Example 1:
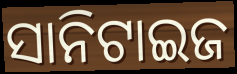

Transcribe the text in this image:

ସାନିଟାଇଜ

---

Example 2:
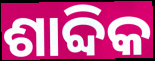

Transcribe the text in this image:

ଶାବ୍ଦିକ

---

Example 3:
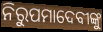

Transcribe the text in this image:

ନିରୁପମାଦେବୀଙ୍କୁ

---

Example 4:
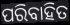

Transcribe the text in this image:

ପରିବାହିତ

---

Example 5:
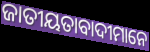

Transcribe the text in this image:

ଜାତୀୟତାବାଦୀମାନେ